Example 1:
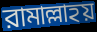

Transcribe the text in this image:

রামাল্লাহয়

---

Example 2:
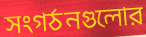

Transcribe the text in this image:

সংগঠনগুলোর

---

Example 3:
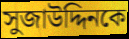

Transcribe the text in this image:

সুজাউদ্দিনকে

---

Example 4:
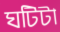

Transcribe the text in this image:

ঘটিটা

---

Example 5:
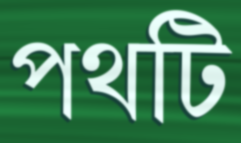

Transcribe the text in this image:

পথটি